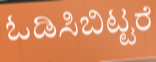
ಓಡಿಸಿಬಿಟ್ಟರೆ